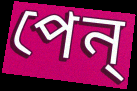
পেন্